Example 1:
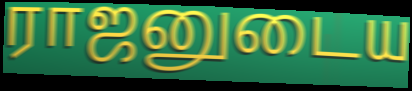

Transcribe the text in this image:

ராஜனுடைய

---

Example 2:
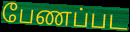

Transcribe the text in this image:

பேணப்பட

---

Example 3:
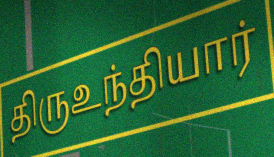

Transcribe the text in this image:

திருஉந்தியார்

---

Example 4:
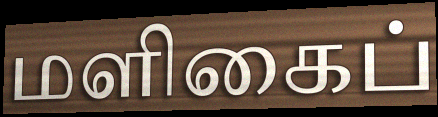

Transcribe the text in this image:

மளிகைப்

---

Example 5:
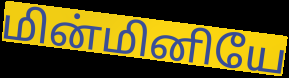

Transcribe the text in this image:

மின்மினியே